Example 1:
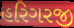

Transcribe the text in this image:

હરિગરજી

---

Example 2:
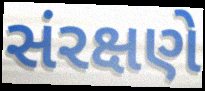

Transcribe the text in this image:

સંરક્ષણે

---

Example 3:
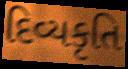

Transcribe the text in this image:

દિવ્યકૃતિ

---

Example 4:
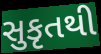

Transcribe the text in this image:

સુકૃતથી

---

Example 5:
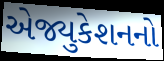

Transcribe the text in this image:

એજ્યુકેશનનો